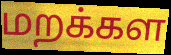
மறக்கள